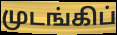
முடங்கிப்